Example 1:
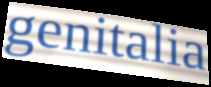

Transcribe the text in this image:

genitalia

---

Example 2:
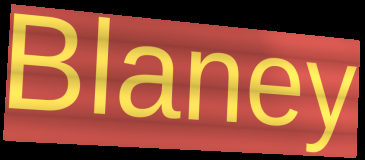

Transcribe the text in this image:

Blaney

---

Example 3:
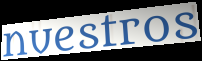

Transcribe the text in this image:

nuestros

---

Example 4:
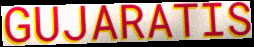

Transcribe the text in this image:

GUJARATIS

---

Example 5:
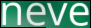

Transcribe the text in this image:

neve